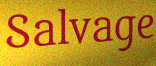
Salvage